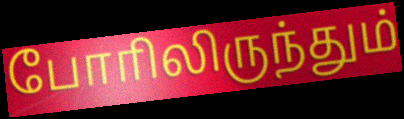
போரிலிருந்தும்